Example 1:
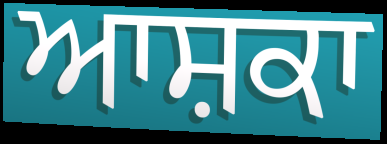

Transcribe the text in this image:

ਆਸ਼ਕਾ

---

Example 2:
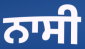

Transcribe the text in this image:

ਨਾਸੀ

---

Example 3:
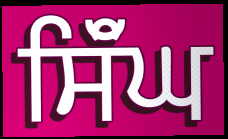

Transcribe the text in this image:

ਸਿੱੰਘ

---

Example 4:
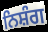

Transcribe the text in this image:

ਨਿਸ਼ੰਗ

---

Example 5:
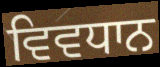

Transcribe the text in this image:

ਵਿਵਧਾਨ